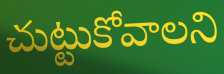
చుట్టుకోవాలని